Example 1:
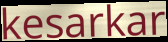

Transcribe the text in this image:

kesarkar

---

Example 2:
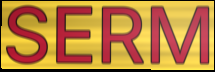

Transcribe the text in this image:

SERM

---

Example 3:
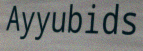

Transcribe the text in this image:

Ayyubids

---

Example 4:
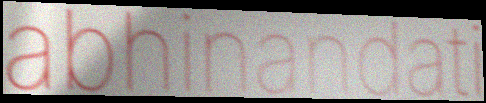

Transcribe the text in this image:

abhinandati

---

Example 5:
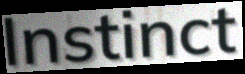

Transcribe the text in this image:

Instinct